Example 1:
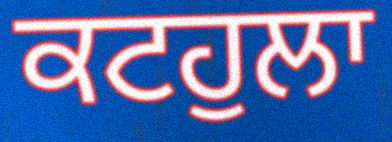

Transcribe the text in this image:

ਕਟਹੁਲਾ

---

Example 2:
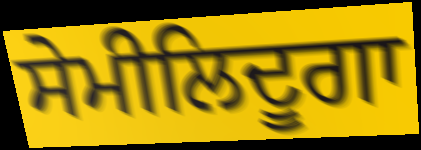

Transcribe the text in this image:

ਸੇਮੀਲਿਦੂਗਾ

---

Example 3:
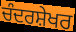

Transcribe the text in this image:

ਚੰਦਰਸ਼ੇਖਰ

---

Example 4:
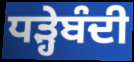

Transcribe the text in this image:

ਧੜ੍ਹੇਬੰਦੀ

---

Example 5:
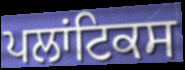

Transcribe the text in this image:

ਪਲਾਂਟਿਕਸ